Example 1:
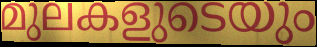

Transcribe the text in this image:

മുലകളുടെയും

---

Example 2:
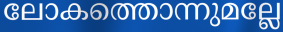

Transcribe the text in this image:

ലോകത്തൊന്നുമല്ലേ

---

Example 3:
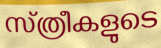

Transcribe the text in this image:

സ്‌ത്രീകളുടെ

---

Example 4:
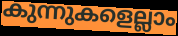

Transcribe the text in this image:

കുന്നുകളെല്ലാം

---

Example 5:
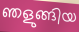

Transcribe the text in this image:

ഞളുങ്ങിയ